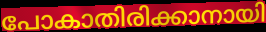
പോകാതിരിക്കാനായി